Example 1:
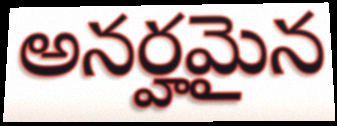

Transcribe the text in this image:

అనర్హమైన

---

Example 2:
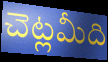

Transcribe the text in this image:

చెట్లమీది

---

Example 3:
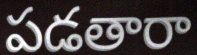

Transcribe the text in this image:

పడతారా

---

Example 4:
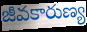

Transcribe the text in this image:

జీవకారుణ్య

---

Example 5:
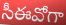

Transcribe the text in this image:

సీఈవోగా